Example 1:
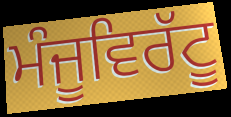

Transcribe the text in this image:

ਮੰਜੂਵਿਰੱਟੂ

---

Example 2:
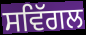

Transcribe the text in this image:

ਸਵਿੱਗਲ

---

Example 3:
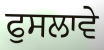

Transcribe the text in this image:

ਫੁਸਲਾਵੇ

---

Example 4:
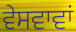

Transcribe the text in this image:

ਵੇਸਵਾਵਾਂ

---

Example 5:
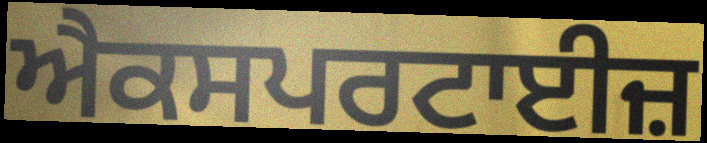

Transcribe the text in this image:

ਐਕਸਪਰਟਾਈਜ਼